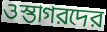
ওস্তাগরদের